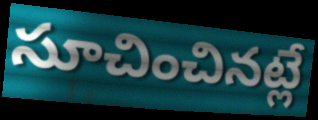
సూచించినట్లే